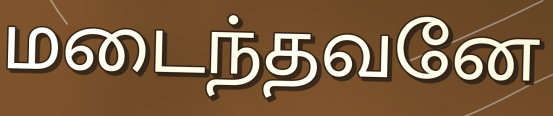
மடைந்தவனே